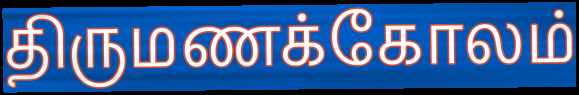
திருமணக்கோலம்